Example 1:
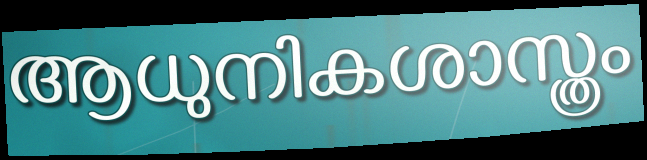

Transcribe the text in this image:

ആധുനികശാസ്ത്രം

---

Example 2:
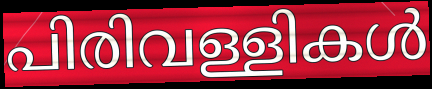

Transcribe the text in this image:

പിരിവള്ളികൾ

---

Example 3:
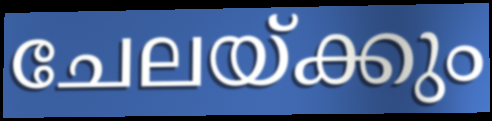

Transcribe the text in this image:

ചേലയ്ക്കും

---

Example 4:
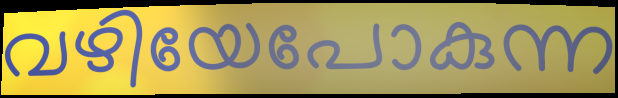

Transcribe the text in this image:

വഴിയേപോകുന്ന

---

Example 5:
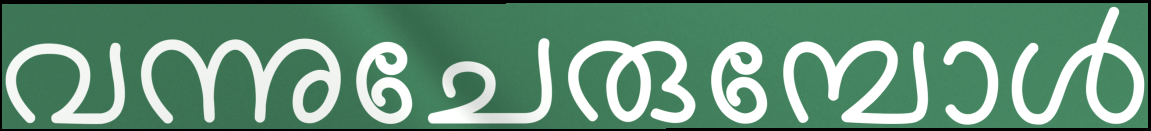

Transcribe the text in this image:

വന്നുചേരുമ്പോൾ